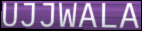
UJJWALA